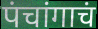
पंचांगाचं